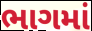
ભાગમાં